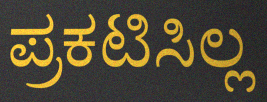
ಪ್ರಕಟಿಸಿಲ್ಲ